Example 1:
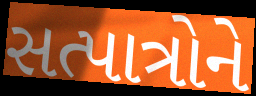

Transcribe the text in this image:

સત્પાત્રોને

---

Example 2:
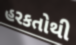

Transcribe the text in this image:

હરકતોથી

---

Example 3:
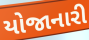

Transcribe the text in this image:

યોજાનારી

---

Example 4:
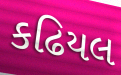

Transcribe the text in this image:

કઢિયલ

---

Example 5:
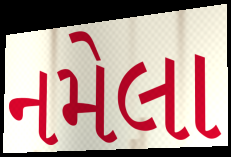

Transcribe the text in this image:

નમેલા